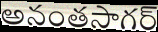
అనంతసాగర్